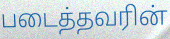
படைத்தவரின்